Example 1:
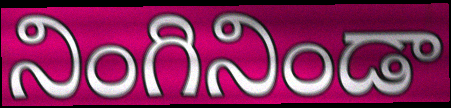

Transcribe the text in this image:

నింగినిండా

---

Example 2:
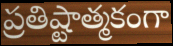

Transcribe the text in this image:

ప్రతిష్టాత్మకంగా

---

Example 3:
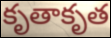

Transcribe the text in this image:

కృతాకృత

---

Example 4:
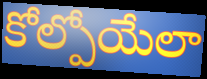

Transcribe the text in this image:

కోల్పోయేలా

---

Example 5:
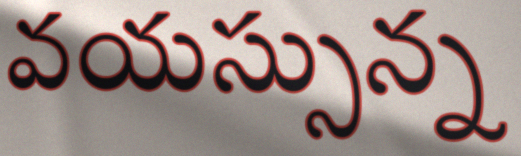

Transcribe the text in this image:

వయస్సున్న